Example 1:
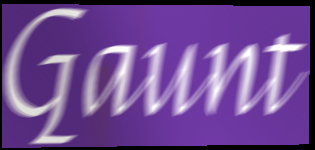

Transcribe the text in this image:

Gaunt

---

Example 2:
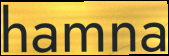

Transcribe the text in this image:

hamna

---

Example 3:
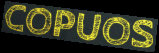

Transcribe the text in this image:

COPUOS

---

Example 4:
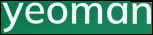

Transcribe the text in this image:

yeoman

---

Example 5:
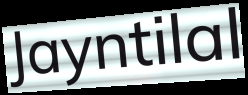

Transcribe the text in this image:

Jayntilal